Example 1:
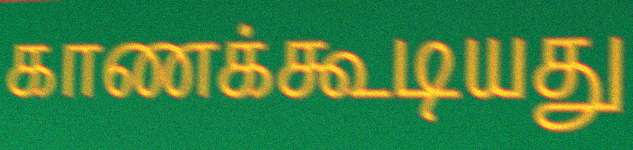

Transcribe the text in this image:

காணக்கூடியது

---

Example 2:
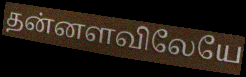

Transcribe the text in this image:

தன்னளவிலேயே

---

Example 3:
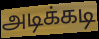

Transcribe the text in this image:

அடிக்கடி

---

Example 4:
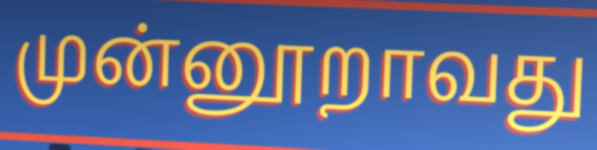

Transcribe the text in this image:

முன்னூறாவது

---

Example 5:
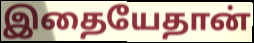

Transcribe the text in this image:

இதையேதான்